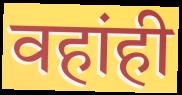
वहांही